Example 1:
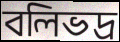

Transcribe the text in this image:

বলিভদ্র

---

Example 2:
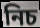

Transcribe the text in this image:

নিচ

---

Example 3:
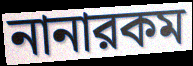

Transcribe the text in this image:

নানারকম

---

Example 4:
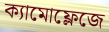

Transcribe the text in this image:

ক্যামোফ্লেজে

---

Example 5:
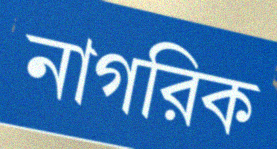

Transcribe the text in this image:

নাগরিক